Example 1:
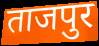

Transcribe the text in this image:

ताजपुर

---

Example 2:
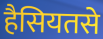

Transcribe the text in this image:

हैसियतसे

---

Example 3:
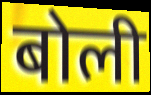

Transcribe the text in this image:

बोली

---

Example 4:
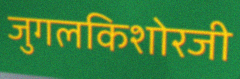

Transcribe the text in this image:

जुगलकिशोरजी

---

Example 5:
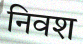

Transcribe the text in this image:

निवश